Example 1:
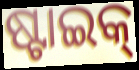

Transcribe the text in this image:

ଷ୍ଟାଇକ୍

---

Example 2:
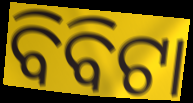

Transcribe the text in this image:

ବିବିଟା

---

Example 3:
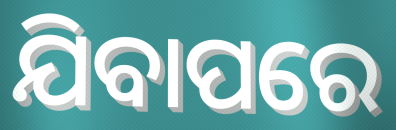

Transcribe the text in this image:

ଯିବାପରେ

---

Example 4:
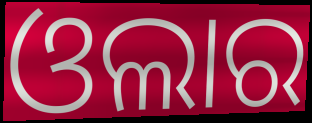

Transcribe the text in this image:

ଓଲାର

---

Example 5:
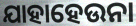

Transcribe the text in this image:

ଯାହାହେଉନା